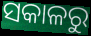
ସକାଳରୁ